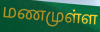
மணமுள்ள